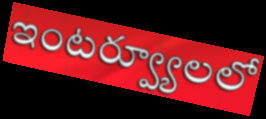
ఇంటర్వ్యూలలో